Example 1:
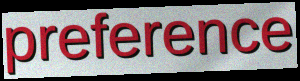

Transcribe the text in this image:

preference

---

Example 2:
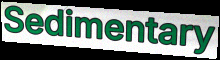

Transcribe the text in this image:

Sedimentary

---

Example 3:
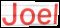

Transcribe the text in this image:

Joel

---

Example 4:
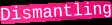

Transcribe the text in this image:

Dismantling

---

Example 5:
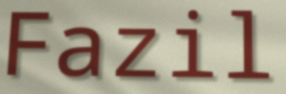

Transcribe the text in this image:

Fazil